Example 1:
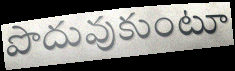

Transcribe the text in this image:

పొదువుకుంటూ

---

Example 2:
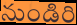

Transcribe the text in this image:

నుండిరి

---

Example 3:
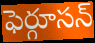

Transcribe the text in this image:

ఫెర్గూసన్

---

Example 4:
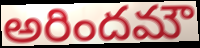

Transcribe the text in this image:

అరిందమౌ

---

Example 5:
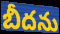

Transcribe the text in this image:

బీదను